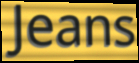
Jeans